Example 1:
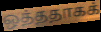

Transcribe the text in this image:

ஒத்ததாகக்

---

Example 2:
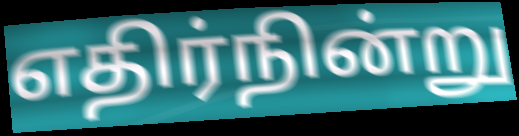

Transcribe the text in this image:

எதிர்நின்று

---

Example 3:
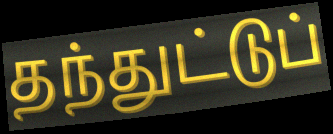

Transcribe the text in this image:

தந்துட்டுப்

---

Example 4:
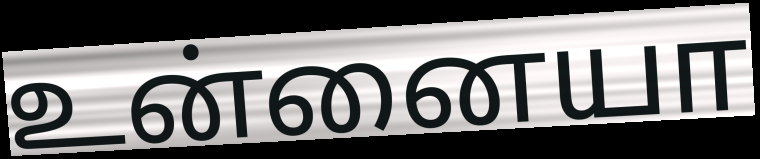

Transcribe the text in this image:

உன்னையா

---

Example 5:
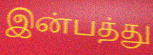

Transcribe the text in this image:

இன்பத்து